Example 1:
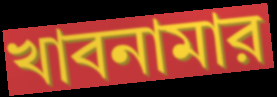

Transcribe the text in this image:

খাবনামার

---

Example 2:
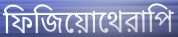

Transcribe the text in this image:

ফিজিয়োথেরাপি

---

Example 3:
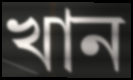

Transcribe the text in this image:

খান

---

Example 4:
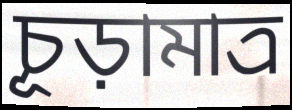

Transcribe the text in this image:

চূড়ামাত্র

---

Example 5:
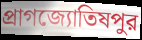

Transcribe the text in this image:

প্রাগজ্যোতিষপুর